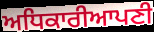
ਅਧਿਕਾਰੀਆਪਣੀ